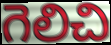
గెలిచి